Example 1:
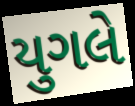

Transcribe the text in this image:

યુગલે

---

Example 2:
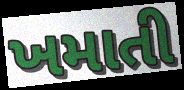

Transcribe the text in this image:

ખમાતી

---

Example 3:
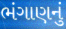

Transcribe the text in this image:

ભંગાણનું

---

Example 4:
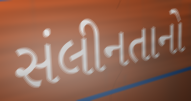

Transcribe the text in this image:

સંલીનતાનો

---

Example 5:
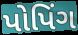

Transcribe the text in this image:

પોપિંગ